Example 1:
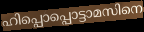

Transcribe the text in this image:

ഹിപ്പൊപ്പൊട്ടാമസിനെ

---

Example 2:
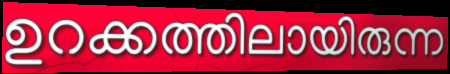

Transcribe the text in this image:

ഉറക്കത്തിലായിരുന്ന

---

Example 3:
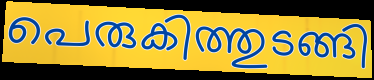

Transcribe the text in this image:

പെരുകിത്തുടങ്ങി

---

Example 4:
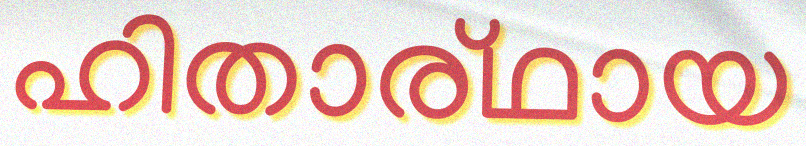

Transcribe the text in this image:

ഹിതാര്ഥായ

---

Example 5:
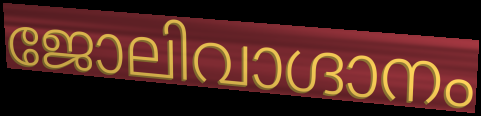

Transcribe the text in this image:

ജോലിവാഗ്ദാനം